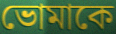
ভোমাকে